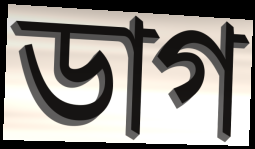
ডাগ